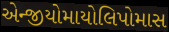
એન્જીયોમાયોલિપોમાસ